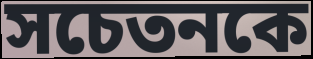
সচেতনকে